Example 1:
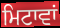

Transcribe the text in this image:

ਮਿਟਾਵਾਂ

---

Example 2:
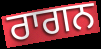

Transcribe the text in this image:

ਰਾਗਨ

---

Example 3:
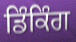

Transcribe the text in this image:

ਡਿੰਕਿੰਗ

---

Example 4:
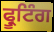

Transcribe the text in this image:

ਫ੍ਰੂਟਿੰਗ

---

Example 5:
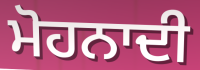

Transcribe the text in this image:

ਮੋਹਨਾਦੀ